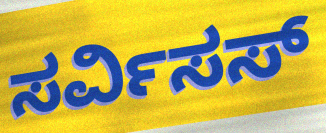
ಸರ್ವಿಸಸ್